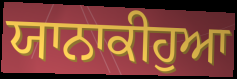
ਯਾਨਾਕੀਹੁਆ